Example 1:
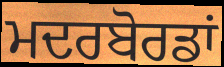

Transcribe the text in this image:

ਮਦਰਬੋਰਡਾਂ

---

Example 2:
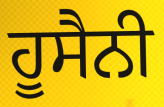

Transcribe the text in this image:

ਹੂਸੈਨੀ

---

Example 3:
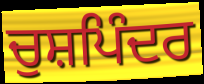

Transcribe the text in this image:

ਚੁਸ਼ਪਿੰਦਰ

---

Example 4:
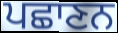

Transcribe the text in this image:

ਪਛਾਣਨ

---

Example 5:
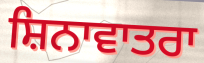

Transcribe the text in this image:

ਸ਼ਿਨਾਵਾਤਰਾ